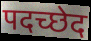
पदच्छेद